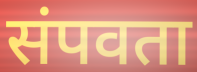
संपवता